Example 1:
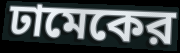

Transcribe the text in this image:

ঢামেকের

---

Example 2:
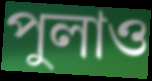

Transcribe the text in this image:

পুলাও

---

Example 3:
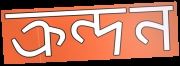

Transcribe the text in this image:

ক্রন্দন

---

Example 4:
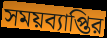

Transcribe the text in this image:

সময়ব্যাপ্তির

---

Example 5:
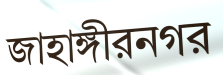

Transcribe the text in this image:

জাহাঙ্গীরনগর